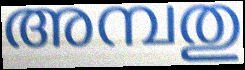
അമ്പതു